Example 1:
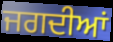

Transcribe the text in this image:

ਜਗਦੀਆਂ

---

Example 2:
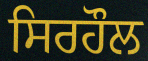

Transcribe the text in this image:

ਸਿਰਹੌਲ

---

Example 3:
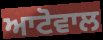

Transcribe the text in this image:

ਆਟੋਵਾਲ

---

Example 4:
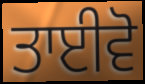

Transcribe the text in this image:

ਤਾਈਵੋ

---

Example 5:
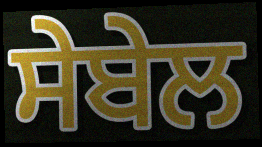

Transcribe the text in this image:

ਸੇਬੇਲ